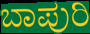
ಬಾಪುರಿ